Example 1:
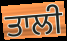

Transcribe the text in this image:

ਤਾਲੀ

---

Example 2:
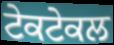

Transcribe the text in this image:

ਟੇਕਟੇਕਲ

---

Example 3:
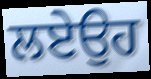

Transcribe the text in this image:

ਲਏਉਹ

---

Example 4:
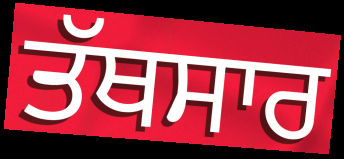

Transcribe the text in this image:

ਤੱਥਸਾਰ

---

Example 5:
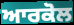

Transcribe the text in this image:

ਆਰਕੋਲ